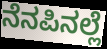
ನೆನಪಿನಲ್ಲೆ